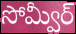
సోమ్వీర్